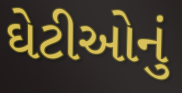
ઘેટીઓનું